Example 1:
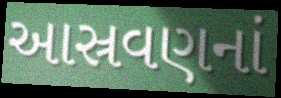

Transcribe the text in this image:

આસ્રવણનાં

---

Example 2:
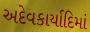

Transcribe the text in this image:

અદેવકાર્યાદિમાં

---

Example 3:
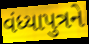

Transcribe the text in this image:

વંધ્યાપુત્રને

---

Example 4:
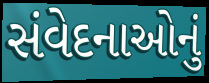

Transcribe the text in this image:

સંવેદનાઓનું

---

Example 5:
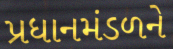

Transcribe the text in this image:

પ્રધાનમંડળને